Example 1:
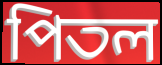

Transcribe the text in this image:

পিতল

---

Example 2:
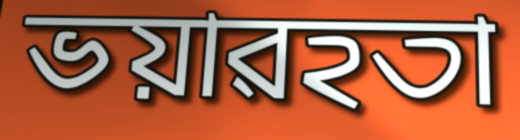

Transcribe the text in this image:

ভয়াৱহতা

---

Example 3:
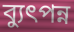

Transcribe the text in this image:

ব্যুৎপন্ন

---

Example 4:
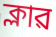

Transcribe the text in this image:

ক্লাৱ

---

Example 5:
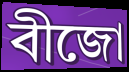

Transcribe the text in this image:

বীজো